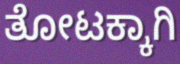
ತೋಟಕ್ಕಾಗಿ